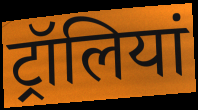
ट्रॉलियां